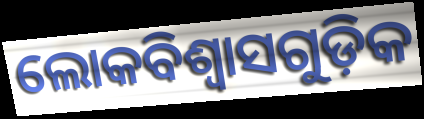
ଲୋକବିଶ୍ୱାସଗୁଡ଼ିକ